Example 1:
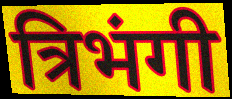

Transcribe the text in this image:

त्रिभंगी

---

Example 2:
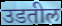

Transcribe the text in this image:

उडतील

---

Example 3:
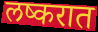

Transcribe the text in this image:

लष्करात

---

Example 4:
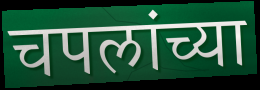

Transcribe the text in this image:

चपलांच्या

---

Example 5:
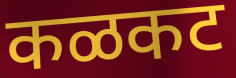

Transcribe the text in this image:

कळकट